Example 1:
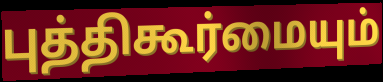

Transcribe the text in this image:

புத்திகூர்மையும்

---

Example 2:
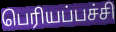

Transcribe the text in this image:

பெரியப்பச்சி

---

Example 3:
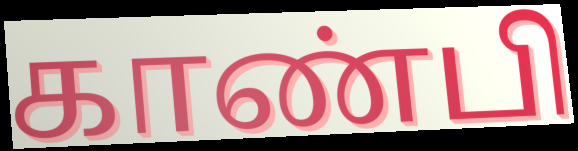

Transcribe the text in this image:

காண்பி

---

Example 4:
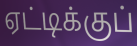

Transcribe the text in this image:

ஏட்டிக்குப்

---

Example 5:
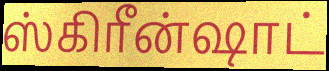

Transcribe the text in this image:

ஸ்கிரீன்ஷாட்